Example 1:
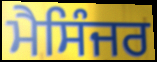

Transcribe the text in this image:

ਮੈਸਿੰਜਰ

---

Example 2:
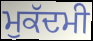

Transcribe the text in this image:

ਮੁਕੱਦਮੀ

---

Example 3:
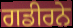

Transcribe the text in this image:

ਗਡੀਰਨੇ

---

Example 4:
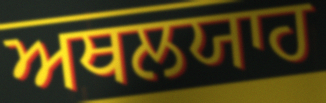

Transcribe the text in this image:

ਅਥਲਯਾਹ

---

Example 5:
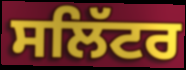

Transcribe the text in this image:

ਸਲਿੱਟਰ